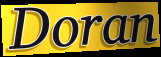
Doran